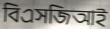
বিএসজিআই